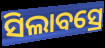
ସିଲାବସ୍ରେ